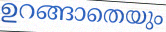
ഉറങ്ങാതെയും